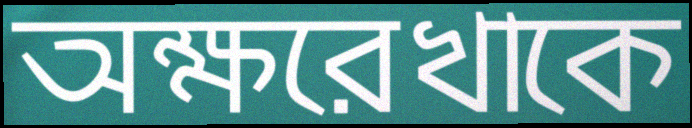
অক্ষরেখাকে